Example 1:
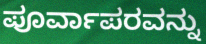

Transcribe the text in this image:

ಪೂರ್ವಾಪರವನ್ನು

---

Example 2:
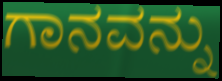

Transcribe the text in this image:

ಗಾನವನ್ನು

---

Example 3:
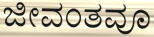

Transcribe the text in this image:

ಜೀವಂತವೂ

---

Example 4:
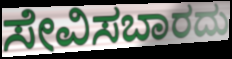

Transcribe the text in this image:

ಸೇವಿಸಬಾರದು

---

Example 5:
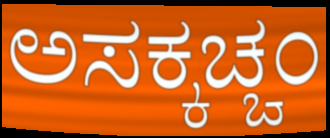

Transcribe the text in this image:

ಅಸಕ್ಕಚ್ಚಂ